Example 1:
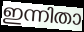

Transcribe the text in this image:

ഇന്നിതാ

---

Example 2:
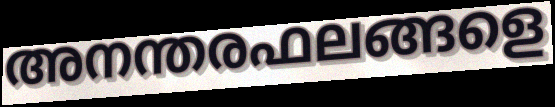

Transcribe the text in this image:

അനന്തരഫലങ്ങളെ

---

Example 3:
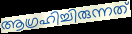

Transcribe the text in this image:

ആഗ്രഹിച്ചിരുന്നത്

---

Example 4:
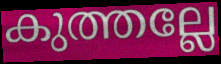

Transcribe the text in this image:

കുത്തല്ലേ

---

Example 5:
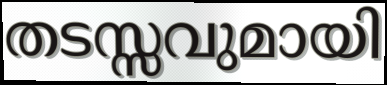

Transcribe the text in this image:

തടസ്സവുമായി